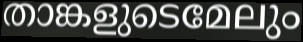
താങ്കളുടെമേലും